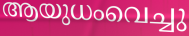
ആയുധംവെച്ചു